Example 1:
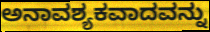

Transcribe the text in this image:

ಅನಾವಶ್ಯಕವಾದವನ್ನು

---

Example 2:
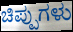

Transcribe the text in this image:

ಚಿಪ್ಪುಗಳು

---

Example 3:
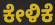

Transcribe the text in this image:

ಕೇಳಿಕೆ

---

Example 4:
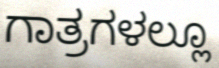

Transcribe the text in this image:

ಗಾತ್ರಗಳಲ್ಲೂ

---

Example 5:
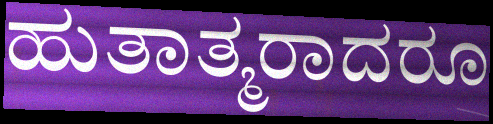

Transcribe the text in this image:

ಹುತಾತ್ಮರಾದರೂ